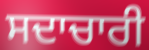
ਸਦਾਚਾਰੀ